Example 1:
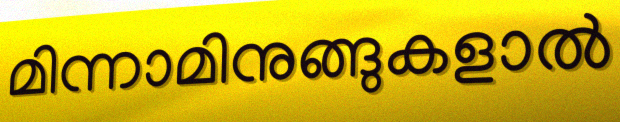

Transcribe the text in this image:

മിന്നാമിനുങ്ങുകളാൽ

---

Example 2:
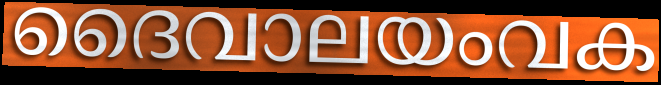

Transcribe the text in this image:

ദൈവാലയംവക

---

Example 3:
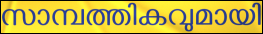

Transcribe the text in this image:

സാമ്പത്തികവുമായി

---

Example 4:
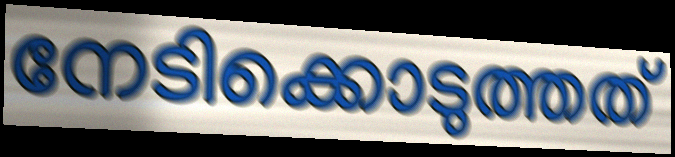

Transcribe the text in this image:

നേടിക്കൊടുത്തത്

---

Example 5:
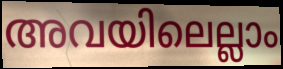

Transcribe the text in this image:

അവയിലെല്ലാം